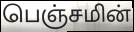
பெஞ்சமின்